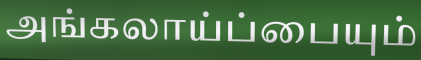
அங்கலாய்ப்பையும்